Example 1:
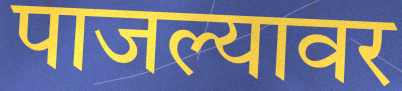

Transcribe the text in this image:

पाजल्यावर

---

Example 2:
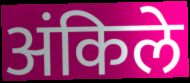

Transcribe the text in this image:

अंकिले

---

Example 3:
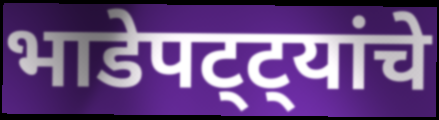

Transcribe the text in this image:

भाडेपट्ट्यांचे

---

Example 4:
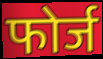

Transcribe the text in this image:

फोर्ज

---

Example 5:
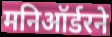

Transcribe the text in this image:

मनिऑर्डरने